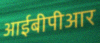
आईबीपीआर